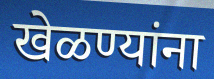
खेळण्यांना